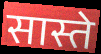
सास्ते